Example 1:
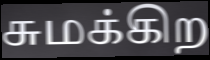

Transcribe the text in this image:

சுமக்கிற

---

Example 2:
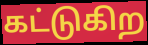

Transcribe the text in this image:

கட்டுகிற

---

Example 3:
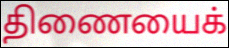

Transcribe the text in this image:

திணையைக்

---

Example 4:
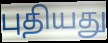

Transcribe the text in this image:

புதியது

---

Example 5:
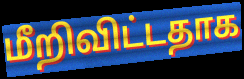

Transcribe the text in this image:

மீறிவிட்டதாக